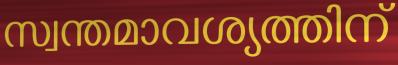
സ്വന്തമാവശ്യത്തിന്